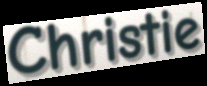
Christie